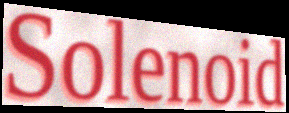
Solenoid